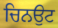
ਚਿਨਉਟ